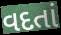
વદતાં